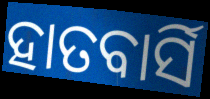
ହାତବାର୍ସି